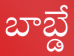
బాబ్డే